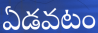
ఏడవటం